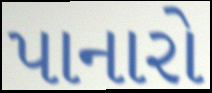
પાનારો